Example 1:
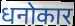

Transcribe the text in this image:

धनोकार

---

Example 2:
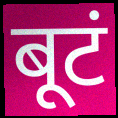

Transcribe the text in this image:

बूटं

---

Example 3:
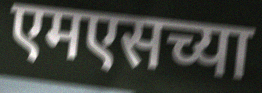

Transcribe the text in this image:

एमएसच्या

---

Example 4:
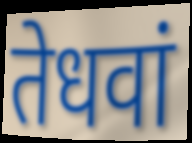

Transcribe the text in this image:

तेधवां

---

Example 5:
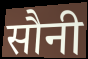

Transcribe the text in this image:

सौनी